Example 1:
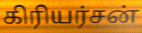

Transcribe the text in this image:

கிரியர்சன்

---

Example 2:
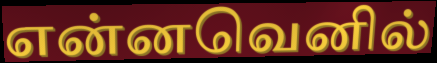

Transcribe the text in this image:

என்னவெனில்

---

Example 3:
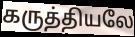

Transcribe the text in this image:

கருத்தியலே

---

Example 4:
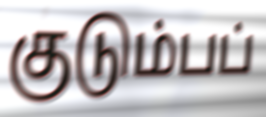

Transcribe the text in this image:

குடும்பப்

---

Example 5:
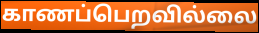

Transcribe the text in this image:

காணப்பெறவில்லை